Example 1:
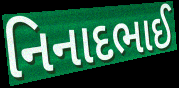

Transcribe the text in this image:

નિનાદભાઈ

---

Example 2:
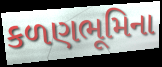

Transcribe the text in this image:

કળણભૂમિના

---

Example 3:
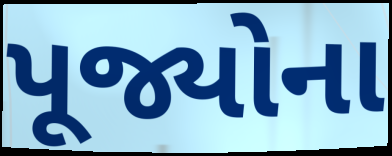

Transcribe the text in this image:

પૂજ્યોના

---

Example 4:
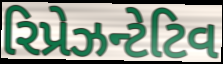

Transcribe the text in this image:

રિપ્રેઝન્ટેટિવ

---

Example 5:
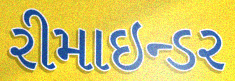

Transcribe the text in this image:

રીમાઇન્ડર